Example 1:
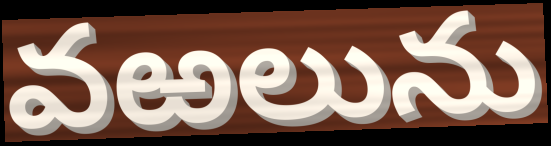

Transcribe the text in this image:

వఱలును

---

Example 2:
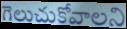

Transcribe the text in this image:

గెలుచుకోవాలని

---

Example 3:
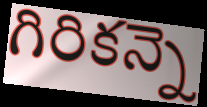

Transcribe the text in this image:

గిరికన్నె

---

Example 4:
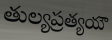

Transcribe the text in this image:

తుల్యప్రత్యయౌ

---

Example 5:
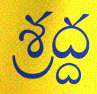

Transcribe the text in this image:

శ్రద్ద